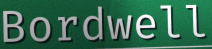
Bordwell